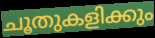
ചൂതുകളിക്കും